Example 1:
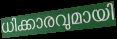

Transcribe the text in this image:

ധിക്കാരവുമായി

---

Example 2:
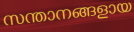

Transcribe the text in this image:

സന്താനങ്ങളായ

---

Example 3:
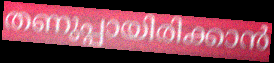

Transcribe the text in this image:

തണുപ്പായിരിക്കാൻ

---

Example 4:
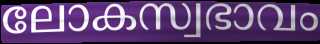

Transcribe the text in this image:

ലോകസ്വഭാവം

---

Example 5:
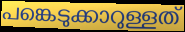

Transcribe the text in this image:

പങ്കെടുക്കാറുള്ളത്